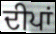
ਦੀਪਾਂ